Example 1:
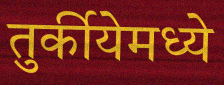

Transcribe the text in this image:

तुर्कीयेमध्ये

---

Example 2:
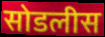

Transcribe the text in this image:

सोडलीस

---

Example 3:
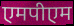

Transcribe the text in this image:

एमपीएम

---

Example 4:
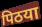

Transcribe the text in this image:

पिठया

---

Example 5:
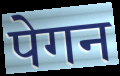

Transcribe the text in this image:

पेगन